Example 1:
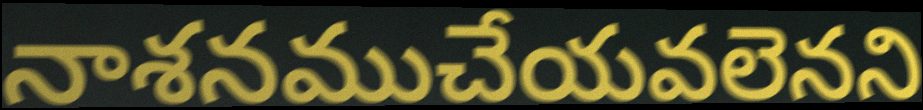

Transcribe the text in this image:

నాశనముచేయవలెనని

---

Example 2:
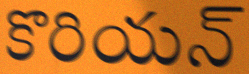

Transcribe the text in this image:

కొరియన్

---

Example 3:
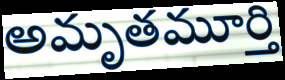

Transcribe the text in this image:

అమృతమూర్తి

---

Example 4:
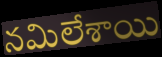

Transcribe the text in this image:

నమిలేశాయి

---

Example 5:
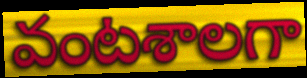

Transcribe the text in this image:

వంటశాలగా